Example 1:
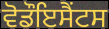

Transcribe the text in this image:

ਵੋਡੌਇਸੈਂਟਸ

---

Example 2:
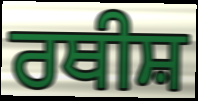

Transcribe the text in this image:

ਰਥੀਸ਼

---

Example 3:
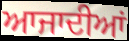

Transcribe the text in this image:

ਆਜਾਦੀਆਂ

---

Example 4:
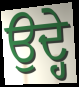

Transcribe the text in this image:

ਉਦ੍ਹੇ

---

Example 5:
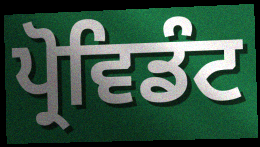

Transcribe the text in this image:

ਪ੍ਰੋਵਿਡੰਟ